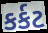
કર્કટ